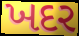
ખદર